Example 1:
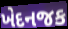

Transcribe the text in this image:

ખેદનજક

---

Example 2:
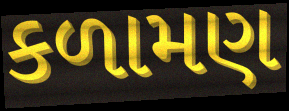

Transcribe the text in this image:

કળામણ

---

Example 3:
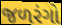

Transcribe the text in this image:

જળરંગો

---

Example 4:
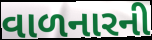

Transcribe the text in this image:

વાળનારની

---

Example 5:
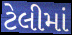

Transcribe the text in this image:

ટેલીમાં